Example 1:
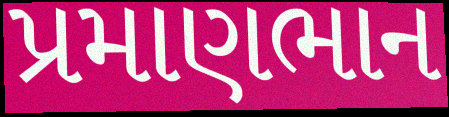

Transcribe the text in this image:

પ્રમાણભાન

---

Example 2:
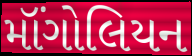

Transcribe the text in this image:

મૉંગોલિયન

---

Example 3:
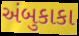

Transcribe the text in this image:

અંબુકાકા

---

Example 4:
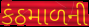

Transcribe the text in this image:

કંઠમાળની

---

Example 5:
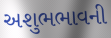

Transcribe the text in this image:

અશુભભાવની